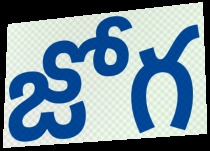
జోగ